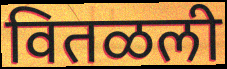
वितळली